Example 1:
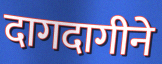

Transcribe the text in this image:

दागदागीने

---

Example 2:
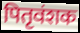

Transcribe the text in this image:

पितृवंशक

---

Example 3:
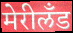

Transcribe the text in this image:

मेरीलँड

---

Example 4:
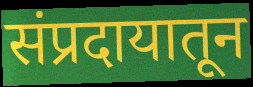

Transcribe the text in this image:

संप्रदायातून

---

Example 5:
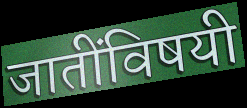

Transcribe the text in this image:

जातींविषयी